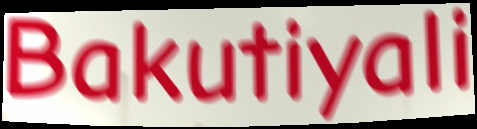
Bakutiyali